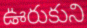
ఊరుకుని